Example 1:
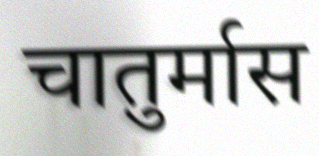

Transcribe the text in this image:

चातुर्मास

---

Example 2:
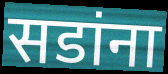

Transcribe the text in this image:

सडांना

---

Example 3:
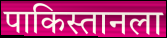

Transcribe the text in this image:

पाकिस्तानला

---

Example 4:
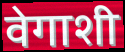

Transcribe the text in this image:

वेगाशी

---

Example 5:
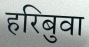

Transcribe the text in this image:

हरिबुवा